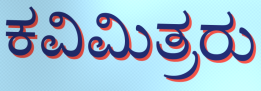
ಕವಿಮಿತ್ರರು